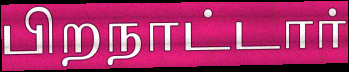
பிறநாட்டார்